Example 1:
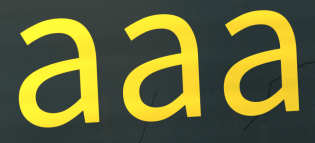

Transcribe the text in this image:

aaa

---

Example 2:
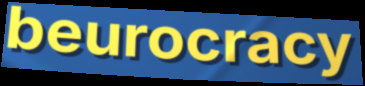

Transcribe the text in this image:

beurocracy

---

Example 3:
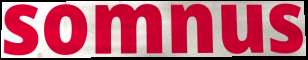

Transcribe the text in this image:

somnus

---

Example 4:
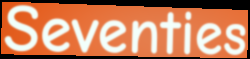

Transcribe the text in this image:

Seventies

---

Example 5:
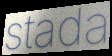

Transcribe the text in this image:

stada